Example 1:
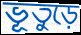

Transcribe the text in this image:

ভূতুড়ে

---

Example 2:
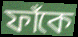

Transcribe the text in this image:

ফাঁকে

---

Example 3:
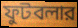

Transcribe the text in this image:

ফুটবলার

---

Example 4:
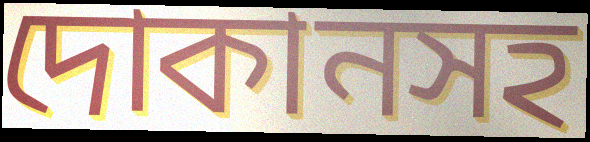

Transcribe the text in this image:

দোকানসহ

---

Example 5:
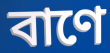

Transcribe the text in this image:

বাণে